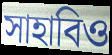
সাহাবিও